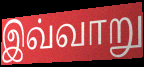
இவ்வாறு